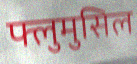
फ्लुमुसिल